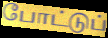
போட்டுப்